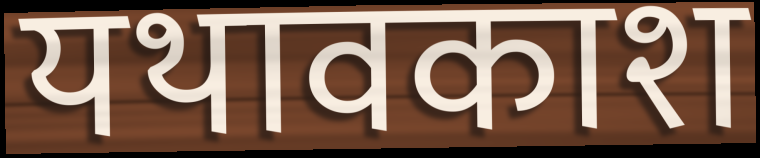
यथावकाश